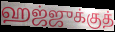
ஹஜ்ஜுக்குத்